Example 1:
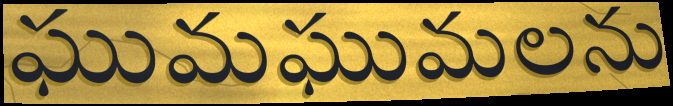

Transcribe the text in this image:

ఘుమఘుమలను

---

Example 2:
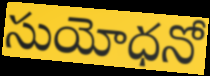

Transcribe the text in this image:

సుయోధనో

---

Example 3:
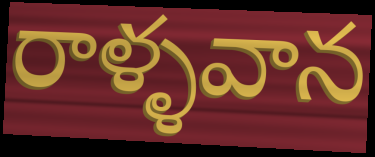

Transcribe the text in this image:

రాళ్ళవాన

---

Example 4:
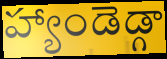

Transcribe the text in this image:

హ్యాండెడ్గా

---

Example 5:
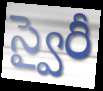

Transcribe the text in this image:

స్వైరీ